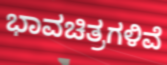
ಭಾವಚಿತ್ರಗಳಿವೆ